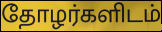
தோழர்களிடம்